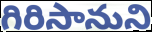
గిరిసానుని